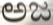
ಅಜ